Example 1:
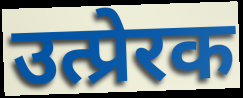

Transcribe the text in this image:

उत्प्रेरक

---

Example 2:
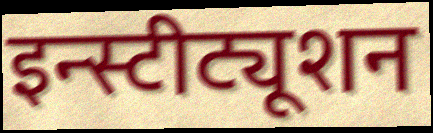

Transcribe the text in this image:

इन्स्टीट्यूशन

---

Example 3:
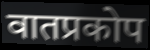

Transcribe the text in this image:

वातप्रकोप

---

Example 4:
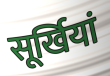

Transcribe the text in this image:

सूर्खियां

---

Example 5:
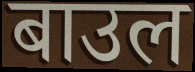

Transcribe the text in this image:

बाउल